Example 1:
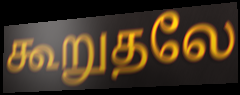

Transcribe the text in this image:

கூறுதலே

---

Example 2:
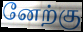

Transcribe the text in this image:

னேற்கு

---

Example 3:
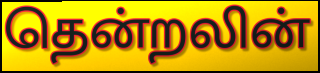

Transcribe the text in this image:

தென்றலின்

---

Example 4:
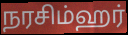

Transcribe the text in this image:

நரசிம்ஹர்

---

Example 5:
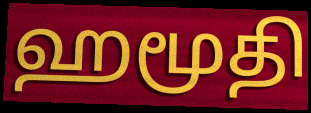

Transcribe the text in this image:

ஹமூதி